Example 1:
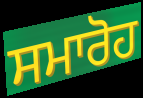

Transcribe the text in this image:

ਸਮਾਰੋਹ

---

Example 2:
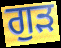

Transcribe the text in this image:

ਗੁੜ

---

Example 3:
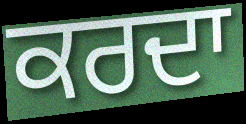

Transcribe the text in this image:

ਕਰਦਾ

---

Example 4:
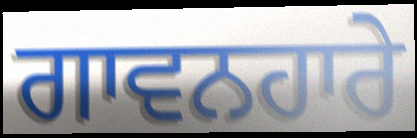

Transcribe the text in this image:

ਗਾਵਨਹਾਰੇ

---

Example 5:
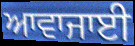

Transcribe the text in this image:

ਆਵਾਜਾਈ